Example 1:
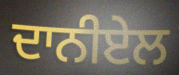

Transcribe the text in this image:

ਦਾਨੀਏਲ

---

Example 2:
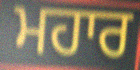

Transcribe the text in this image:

ਮਹਾਰ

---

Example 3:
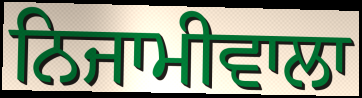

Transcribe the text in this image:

ਨਿਜਾਮੀਵਾਲਾ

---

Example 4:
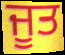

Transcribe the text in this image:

ਜੂਤ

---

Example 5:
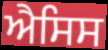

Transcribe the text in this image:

ਐਸਿਸ